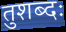
तुशब्दः